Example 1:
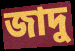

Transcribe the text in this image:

জাদু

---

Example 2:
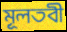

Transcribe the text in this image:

মূলতবী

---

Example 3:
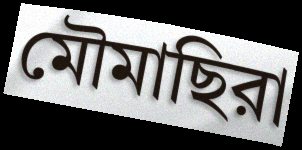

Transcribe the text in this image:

মৌমাছিরা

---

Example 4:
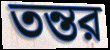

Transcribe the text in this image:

তন্তর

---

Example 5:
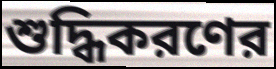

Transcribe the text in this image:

শুদ্ধিকরণের